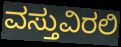
ವಸ್ತುವಿರಲಿ